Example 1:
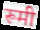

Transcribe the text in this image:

रूमी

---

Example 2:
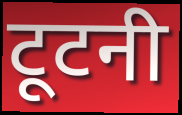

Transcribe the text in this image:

टूटनी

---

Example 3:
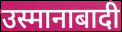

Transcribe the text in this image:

उस्मानाबादी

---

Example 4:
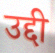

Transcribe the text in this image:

उद्दी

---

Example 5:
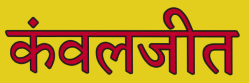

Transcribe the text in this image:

कंवलजीत